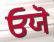
ਓਯੋ